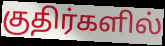
குதிர்களில்